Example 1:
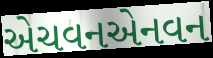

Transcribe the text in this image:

એચવનએનવન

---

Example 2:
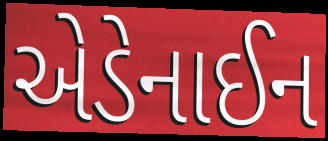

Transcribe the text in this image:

એડેનાઈન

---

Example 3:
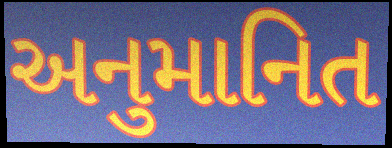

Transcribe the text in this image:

અનુમાનિત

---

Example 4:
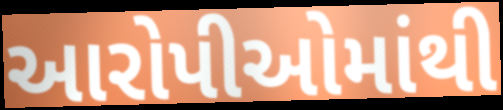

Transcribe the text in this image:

આરોપીઓમાંથી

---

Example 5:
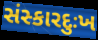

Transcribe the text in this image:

સંસ્કારદુઃખ